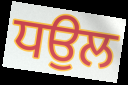
ਧਉਲ